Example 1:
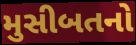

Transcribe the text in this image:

મુસીબતનો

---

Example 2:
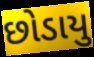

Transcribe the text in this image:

છોડાયુ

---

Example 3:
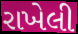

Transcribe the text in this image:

રાખેલી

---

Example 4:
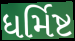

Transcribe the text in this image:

ધર્મિષ્ટ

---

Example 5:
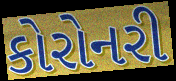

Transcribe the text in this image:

કોરોનરી